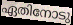
ഏതിനോടു